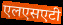
एलएसएटी